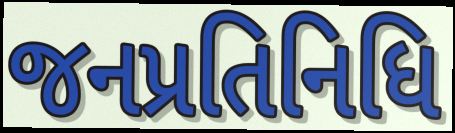
જનપ્રતિનિધિ